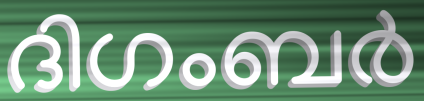
ദിഗംബർ